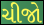
ચીજો